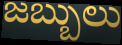
జబ్బులు